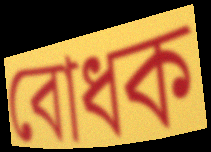
বোধক